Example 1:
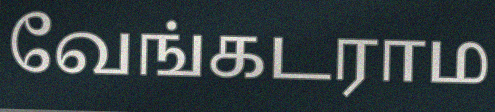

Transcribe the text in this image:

வேங்கடராம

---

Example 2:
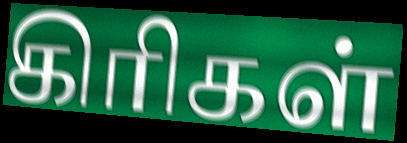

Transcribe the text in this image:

கிரிகள்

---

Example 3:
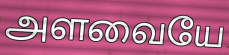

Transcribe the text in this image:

அளவையே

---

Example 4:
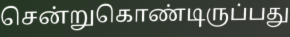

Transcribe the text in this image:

சென்றுகொண்டிருப்பது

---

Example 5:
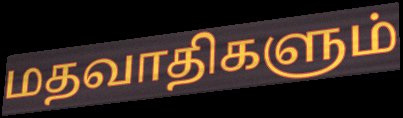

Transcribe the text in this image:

மதவாதிகளும்